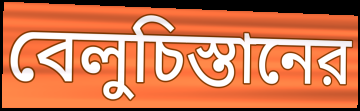
বেলুচিস্তানের